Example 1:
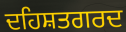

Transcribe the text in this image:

ਦਹਿਸ਼ਤਗਰਦ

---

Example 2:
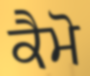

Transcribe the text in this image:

ਕੈਮੋ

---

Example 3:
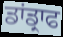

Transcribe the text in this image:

ਡਾਂਡ੍ਰਾਫ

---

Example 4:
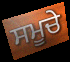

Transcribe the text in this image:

ਸਮੂਚੇ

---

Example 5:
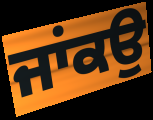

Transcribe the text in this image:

ਜਾਂਕਉ